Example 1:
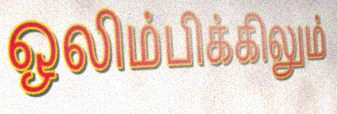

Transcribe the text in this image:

ஒலிம்பிக்கிலும்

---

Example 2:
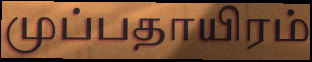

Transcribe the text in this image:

முப்பதாயிரம்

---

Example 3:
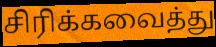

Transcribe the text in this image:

சிரிக்கவைத்து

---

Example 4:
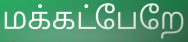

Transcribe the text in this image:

மக்கட்பேறே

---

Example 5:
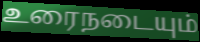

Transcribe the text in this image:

உரைநடையும்